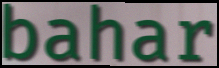
bahar